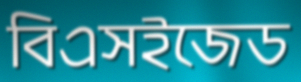
বিএসইজেড